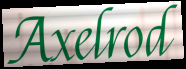
Axelrod